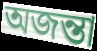
অজন্তা